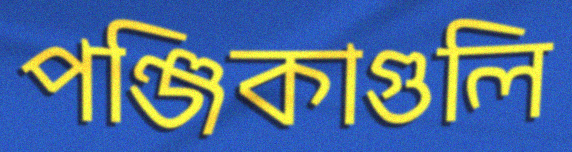
পঞ্জিকাগুলি